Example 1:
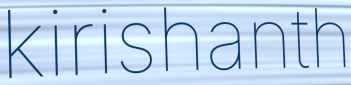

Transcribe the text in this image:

kirishanth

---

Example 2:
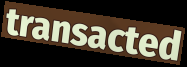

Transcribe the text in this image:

transacted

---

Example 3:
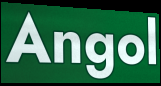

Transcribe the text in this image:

Angol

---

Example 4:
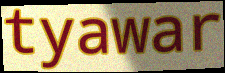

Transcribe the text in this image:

tyawar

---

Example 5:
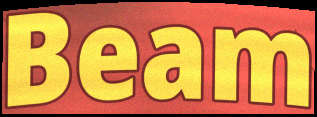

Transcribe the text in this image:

Beam